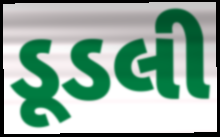
ડૂડલી